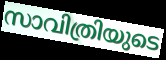
സാവിത്രിയുടെ